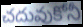
చదువుకోనీ